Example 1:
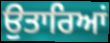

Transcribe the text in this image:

ਉਤਾਰਿਆਂ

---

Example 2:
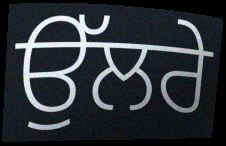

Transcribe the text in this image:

ਉੱਲਰੇ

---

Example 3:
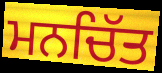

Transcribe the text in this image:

ਮਨਚਿੱਤ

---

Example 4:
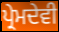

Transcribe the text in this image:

ਪ੍ਰੇਮਦੇਵੀ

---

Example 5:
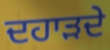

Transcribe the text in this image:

ਦਹਾੜਦੇ